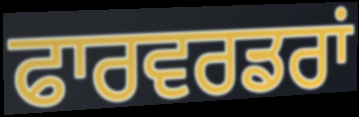
ਫਾਰਵਰਡਰਾਂ